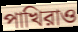
পাখিরাও